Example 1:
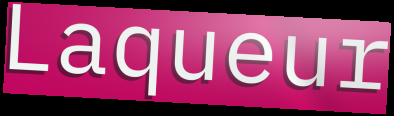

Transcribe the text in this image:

Laqueur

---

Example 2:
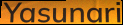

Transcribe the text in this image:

Yasunari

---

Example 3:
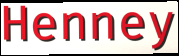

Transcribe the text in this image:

Henney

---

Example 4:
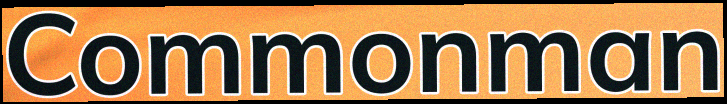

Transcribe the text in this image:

Commonman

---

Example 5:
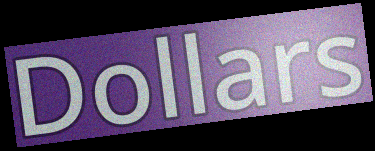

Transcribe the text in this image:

Dollars